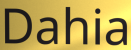
Dahia